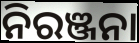
ନିରଞ୍ଜନା